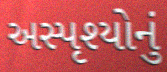
અસ્પૃશ્યોનું